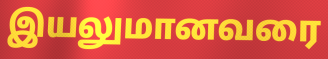
இயலுமானவரை